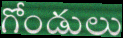
గోండులు